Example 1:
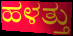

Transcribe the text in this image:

ಹಳತ್ತು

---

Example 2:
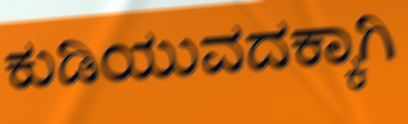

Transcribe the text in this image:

ಕುಡಿಯುವದಕ್ಕಾಗಿ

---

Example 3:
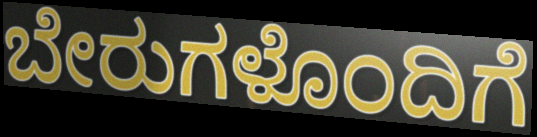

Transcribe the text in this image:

ಬೇರುಗಳೊಂದಿಗೆ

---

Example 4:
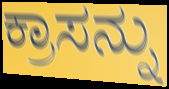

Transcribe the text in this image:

ಕ್ರಾಸನ್ನು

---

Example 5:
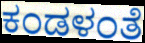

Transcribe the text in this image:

ಕಂಡಳಂತೆ